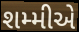
શમ્મીએ